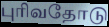
புரிவதோடு